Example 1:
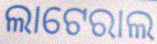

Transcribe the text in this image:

ଲାଟେରାଲ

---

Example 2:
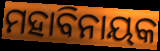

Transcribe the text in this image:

ମହାବିନାୟକ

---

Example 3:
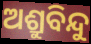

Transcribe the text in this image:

ଅଶ୍ରୁବିନ୍ଦୁ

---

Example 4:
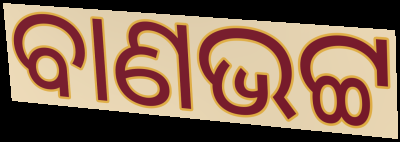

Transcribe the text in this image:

ବାଣଭଟ୍ଟ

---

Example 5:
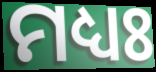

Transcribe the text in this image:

ମଧ୍ୟଃ